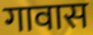
गावास